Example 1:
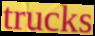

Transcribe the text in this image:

trucks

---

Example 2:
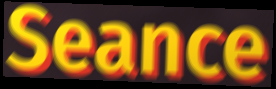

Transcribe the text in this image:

Seance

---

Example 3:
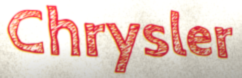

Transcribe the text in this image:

Chrysler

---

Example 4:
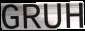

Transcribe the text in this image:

GRUH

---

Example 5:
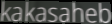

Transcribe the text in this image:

kakasaheb